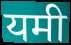
यमी